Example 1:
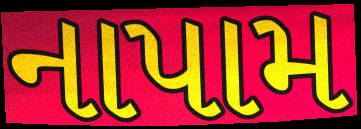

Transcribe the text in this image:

નાપામ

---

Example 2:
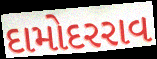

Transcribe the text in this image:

દામોદરરાવ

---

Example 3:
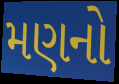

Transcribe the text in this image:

મણનો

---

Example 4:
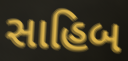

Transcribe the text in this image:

સાહિબ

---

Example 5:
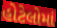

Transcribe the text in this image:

હોટેલોમાં